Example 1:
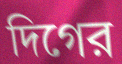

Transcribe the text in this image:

দিগের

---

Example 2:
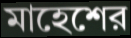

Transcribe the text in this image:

মাহেশের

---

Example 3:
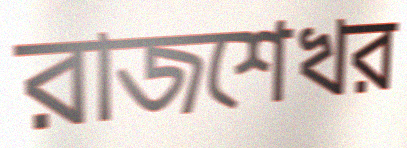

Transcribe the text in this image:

রাজশেখর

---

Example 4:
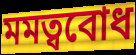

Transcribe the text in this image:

মমত্ববোধ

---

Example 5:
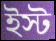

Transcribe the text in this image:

ইস্ট